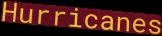
Hurricanes